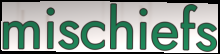
mischiefs